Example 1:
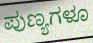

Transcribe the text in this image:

ಪುಣ್ಯಗಳೂ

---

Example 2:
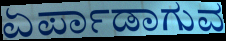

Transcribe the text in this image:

ಏರ್ಪಾಡಾಗುವ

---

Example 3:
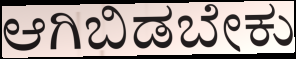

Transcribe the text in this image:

ಆಗಿಬಿಡಬೇಕು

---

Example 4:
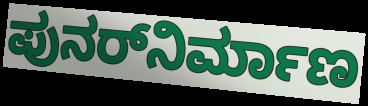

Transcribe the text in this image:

ಪುನರ್‌ನಿರ್ಮಾಣ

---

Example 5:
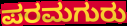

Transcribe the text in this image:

ಪರಮಗುರು